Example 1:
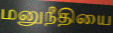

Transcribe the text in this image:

மனுநீதியை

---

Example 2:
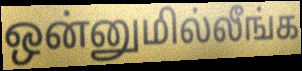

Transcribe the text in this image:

ஒன்னுமில்லீங்க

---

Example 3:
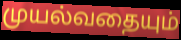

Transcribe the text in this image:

முயல்வதையும்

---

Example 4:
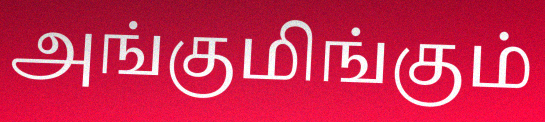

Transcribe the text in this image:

அங்குமிங்கும்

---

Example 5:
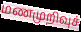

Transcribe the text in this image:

மணமுறிவுச்